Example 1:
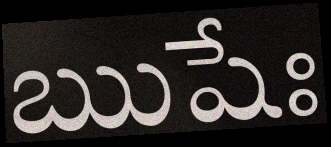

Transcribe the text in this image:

ఋషేః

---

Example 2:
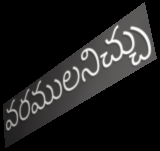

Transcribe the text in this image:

వరములనిచ్చు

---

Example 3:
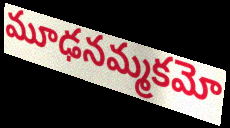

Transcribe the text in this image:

మూఢనమ్మకమో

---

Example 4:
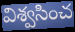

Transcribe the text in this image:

విశ్వసించ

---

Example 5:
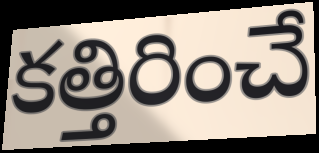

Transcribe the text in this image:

కత్తిరించే